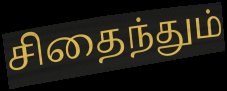
சிதைந்தும்